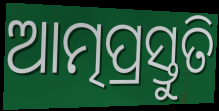
ଆତ୍ମପ୍ରସ୍ତୁତି